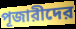
পূজারীদের